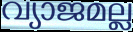
വ്യാജമല്ല